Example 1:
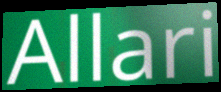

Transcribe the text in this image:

Allari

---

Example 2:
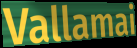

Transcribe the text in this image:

Vallamai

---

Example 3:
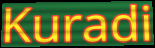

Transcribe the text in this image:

Kuradi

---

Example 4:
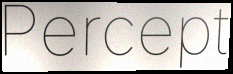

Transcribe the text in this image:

Percept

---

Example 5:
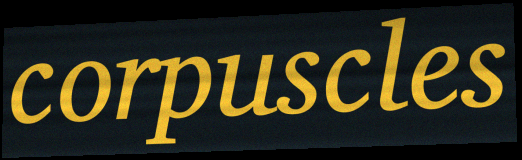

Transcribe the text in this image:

corpuscles